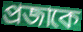
প্রজাকে